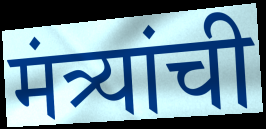
मंत्र्यांची